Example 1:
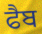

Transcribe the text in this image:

ਫੈਬ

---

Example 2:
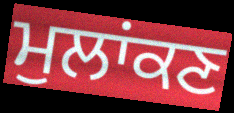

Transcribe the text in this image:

ਮੁਲਾਂਕਣ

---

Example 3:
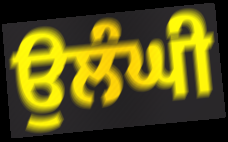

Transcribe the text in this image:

ਉਲੰਘੀ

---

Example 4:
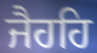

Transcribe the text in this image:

ਜੈਹਹਿ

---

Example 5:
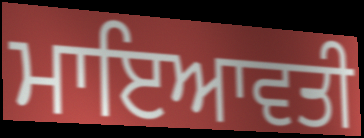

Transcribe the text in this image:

ਮਾਇਆਵਤੀ